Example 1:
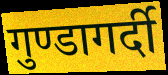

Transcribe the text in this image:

गुण्डागर्दी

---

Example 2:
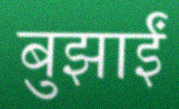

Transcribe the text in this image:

बुझाईं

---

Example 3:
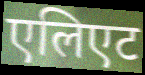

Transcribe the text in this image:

एलिएट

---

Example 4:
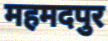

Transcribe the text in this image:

महमदपुर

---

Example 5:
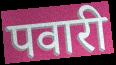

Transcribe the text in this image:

पवारी